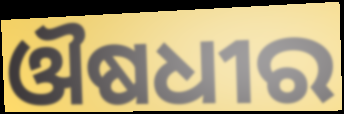
ଔଷଧୀର